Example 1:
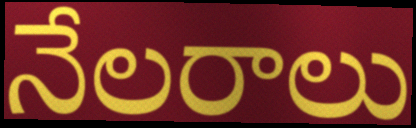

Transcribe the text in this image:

నేలరాలు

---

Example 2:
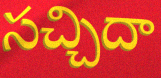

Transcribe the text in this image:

సచ్చిదా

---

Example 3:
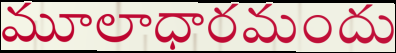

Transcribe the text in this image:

మూలాధారమందు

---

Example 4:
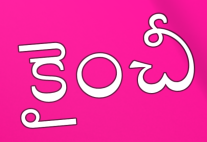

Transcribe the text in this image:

కైంచీ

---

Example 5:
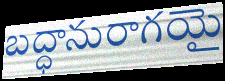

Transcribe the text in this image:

బద్ధానురాగయై